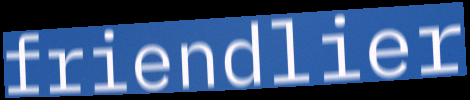
friendlier